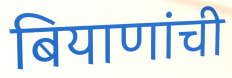
बियाणांची